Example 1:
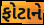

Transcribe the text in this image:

ફોટાને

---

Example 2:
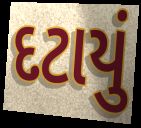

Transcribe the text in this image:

દટાયું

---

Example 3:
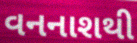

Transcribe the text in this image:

વનનાશથી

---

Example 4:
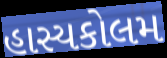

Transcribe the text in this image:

હાસ્યકોલમ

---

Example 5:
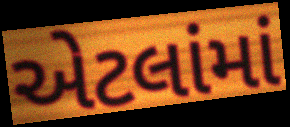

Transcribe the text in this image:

એટલાંમાં